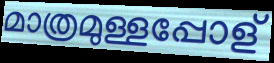
മാത്രമുള്ളപ്പോള്